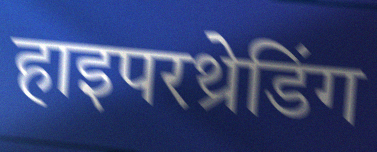
हाइपरथ्रेडिंग